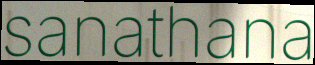
sanathana